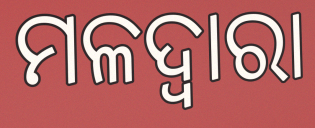
ମଳଦ୍ଵାରା